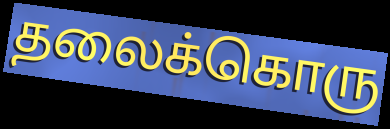
தலைக்கொரு